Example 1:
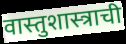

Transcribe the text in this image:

वास्तुशास्त्राची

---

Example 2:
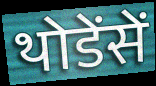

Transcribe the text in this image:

थोडेंसें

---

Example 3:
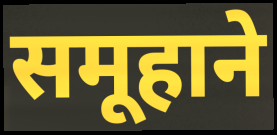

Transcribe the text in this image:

समूहाने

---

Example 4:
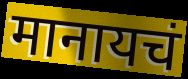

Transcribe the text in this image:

मानायचं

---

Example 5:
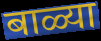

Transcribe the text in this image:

बाळ्या